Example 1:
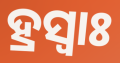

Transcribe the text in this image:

ହ୍ରସ୍ଵାଃ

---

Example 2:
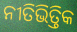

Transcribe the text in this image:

ନୀତିଭିତ୍ତିକ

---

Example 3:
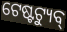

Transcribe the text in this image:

ଟେଷ୍ଟଟ୍ୟୁବ୍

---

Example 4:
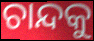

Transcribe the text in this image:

ଚାନ୍ଦକୁ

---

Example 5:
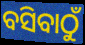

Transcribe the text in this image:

ବସିବାଠୁଁ